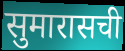
सुमारासची